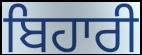
ਬਿਹਾਰੀ